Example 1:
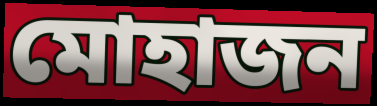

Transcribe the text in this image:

মোহাজন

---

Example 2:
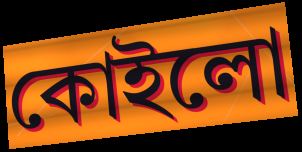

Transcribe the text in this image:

কোইলো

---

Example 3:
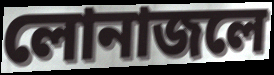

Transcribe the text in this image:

লোনাজলে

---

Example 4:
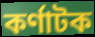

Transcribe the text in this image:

কর্ণাটক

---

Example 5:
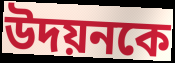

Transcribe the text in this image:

উদয়নকে